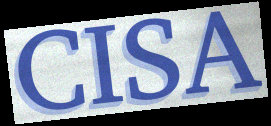
CISA